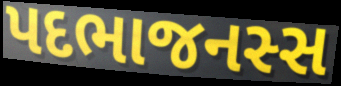
પદભાજનસ્સ